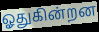
ஓதுகின்றன